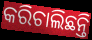
କରିଚାଲିଛନ୍ତି